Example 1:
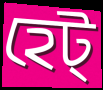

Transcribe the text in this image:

হেট্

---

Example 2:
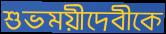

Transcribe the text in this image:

শুভময়ীদেবীকে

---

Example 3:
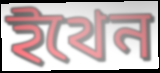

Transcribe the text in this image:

ইথেন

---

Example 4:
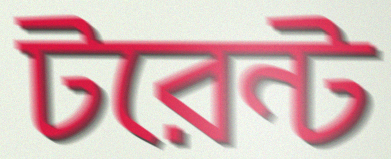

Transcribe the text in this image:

টরেন্ট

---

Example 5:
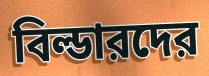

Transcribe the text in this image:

বিল্ডারদের